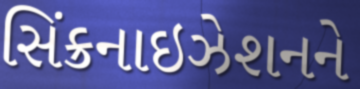
સિંક્રનાઇઝેશનને